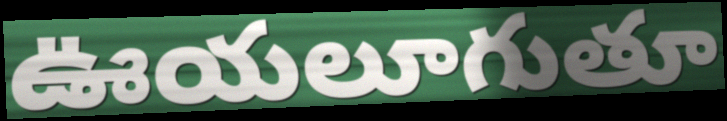
ఊయలూగుతూ